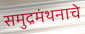
समुद्रमंथनाचे